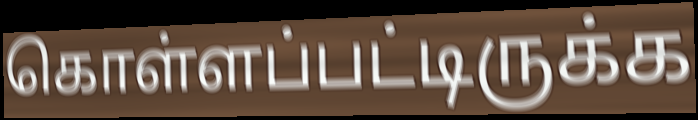
கொள்ளப்பட்டிருக்க